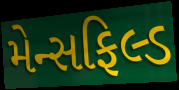
મેન્સફિલ્ડ